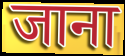
जाना